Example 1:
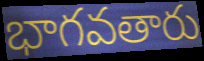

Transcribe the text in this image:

భాగవతారు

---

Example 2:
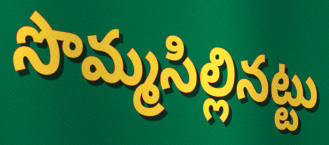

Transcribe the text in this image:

సొమ్మసిల్లినట్టు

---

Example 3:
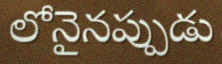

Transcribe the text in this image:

లోనైనప్పుడు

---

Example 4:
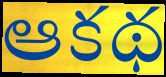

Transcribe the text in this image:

ఆకథ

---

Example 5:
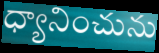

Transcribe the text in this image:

ధ్యానించును